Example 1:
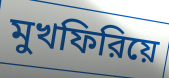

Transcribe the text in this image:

মুখফিরিয়ে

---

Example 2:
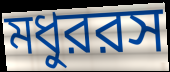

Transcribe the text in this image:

মধুররস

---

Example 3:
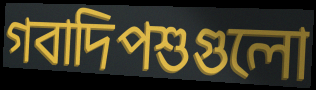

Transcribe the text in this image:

গবাদিপশুগুলো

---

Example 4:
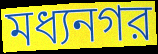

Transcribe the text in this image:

মধ্যনগর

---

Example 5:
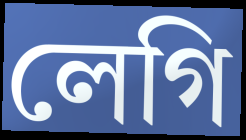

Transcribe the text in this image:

লেগি